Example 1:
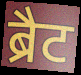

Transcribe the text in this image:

ब्रैट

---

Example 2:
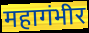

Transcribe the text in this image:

महागंभीर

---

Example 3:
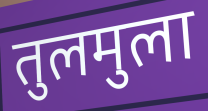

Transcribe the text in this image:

तुलमुला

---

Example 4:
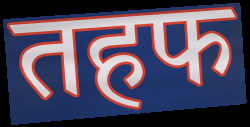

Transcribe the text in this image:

तहफ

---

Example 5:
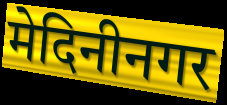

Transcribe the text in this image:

मेदिनीनगर